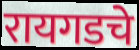
रायगडचे